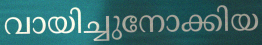
വായിച്ചുനോക്കിയ